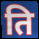
ति